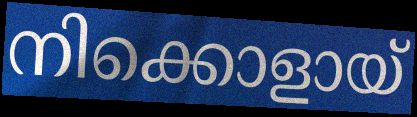
നിക്കൊളായ്